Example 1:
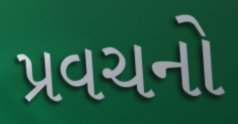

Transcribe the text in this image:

પ્રવચનો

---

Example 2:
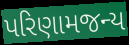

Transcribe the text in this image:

પરિણામજન્ય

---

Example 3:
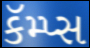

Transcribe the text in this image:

કૅમ્પ્સ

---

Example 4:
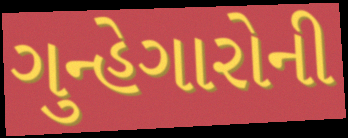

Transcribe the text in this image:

ગુન્હેગારોની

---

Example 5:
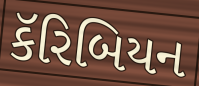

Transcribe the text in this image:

કૅરિબિયન